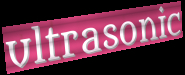
ultrasonic